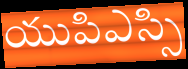
యుపిఎస్సి